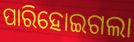
ପାରିହୋଇଗଲା